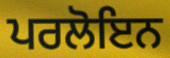
ਪਰਲੋਇਨ